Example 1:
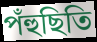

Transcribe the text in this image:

পঁহুছিতি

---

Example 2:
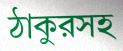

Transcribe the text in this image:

ঠাকুরসহ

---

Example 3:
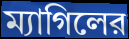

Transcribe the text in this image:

ম্যাগিলের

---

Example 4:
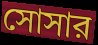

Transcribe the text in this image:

সোসার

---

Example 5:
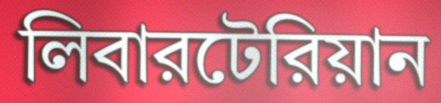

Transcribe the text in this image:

লিবারটেরিয়ান